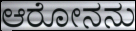
ಆರೋನನು